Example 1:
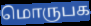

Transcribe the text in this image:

மொருபக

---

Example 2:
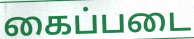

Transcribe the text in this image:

கைப்படை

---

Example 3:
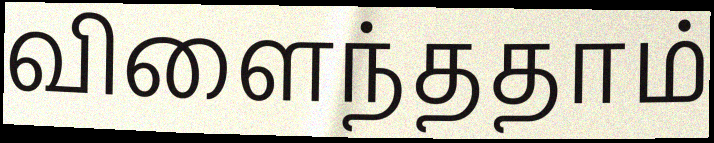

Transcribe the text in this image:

விளைந்ததாம்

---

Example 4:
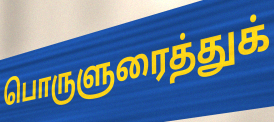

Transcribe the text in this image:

பொருளுரைத்துக்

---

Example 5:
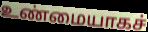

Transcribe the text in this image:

உண்மையாகச்